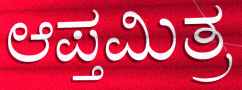
ಆಪ್ತಮಿತ್ರ